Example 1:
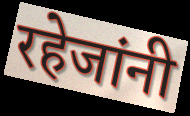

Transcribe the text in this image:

रहेजांनी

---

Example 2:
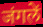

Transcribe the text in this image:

जंगलें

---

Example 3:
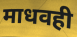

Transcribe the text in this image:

माधवही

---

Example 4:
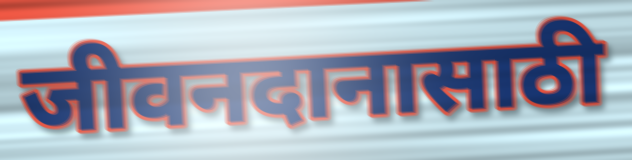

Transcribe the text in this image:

जीवनदानासाठी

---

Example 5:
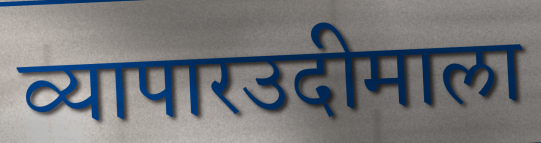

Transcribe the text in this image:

व्यापारउदीमाला